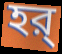
হর্